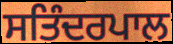
ਸਤਿੰਦਰਪਾਲ